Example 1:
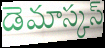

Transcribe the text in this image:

డెమాస్కస్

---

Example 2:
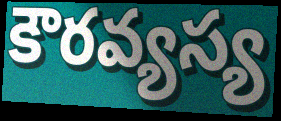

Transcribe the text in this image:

కౌరవ్యస్య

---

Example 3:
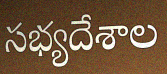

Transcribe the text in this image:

సభ్యదేశాల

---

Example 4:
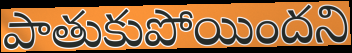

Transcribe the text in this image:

పాతుకుపోయిందని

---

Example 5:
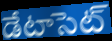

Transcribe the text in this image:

డేటాసెట్